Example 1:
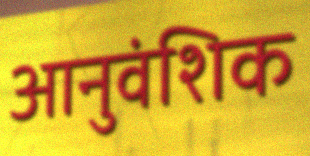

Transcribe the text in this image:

आनुवंशिक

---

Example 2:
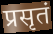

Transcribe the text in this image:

प्रसृतं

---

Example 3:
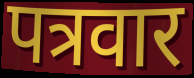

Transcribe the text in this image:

पत्रवार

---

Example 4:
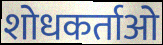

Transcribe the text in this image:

शोधकर्ताओ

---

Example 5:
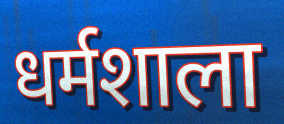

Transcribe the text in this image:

धर्मशाला